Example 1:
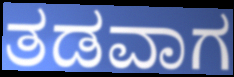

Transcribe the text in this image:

ತಡವಾಗ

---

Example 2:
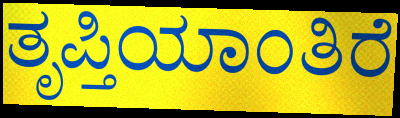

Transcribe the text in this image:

ತೃಪ್ತಿಯಾಂತಿರೆ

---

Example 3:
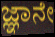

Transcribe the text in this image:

ಜ್ಞಾನೇ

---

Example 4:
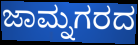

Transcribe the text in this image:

ಜಾಮ್ನಗರದ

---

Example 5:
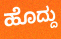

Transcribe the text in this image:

ಹೊದ್ದು